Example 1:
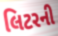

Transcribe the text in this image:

લિટરની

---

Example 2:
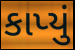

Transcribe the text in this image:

કાપ્યું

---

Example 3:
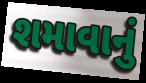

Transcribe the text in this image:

શમાવાનું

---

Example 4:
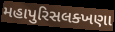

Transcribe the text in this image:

મહાપુરિસલક્ખણા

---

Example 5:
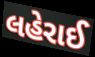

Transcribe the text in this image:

લહેરાઈ